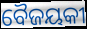
ବୈଜୟକୀ